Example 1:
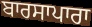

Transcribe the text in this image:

ਬਾਰਸਾਪਾਰਾ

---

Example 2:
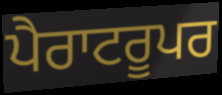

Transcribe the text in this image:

ਪੈਰਾਟਰੂਪਰ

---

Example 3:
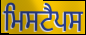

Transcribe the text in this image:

ਮਿਸਟੈਪਸ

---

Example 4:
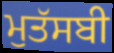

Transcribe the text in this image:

ਮੁਤੱਸਬੀ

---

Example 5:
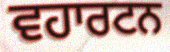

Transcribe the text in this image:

ਵਹਾਰਟਨ